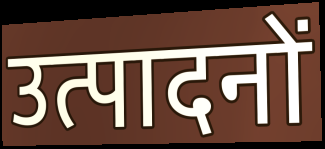
उत्पादनों